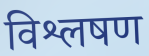
विश्लषण